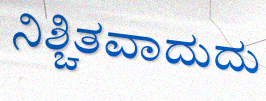
ನಿಶ್ಚಿತವಾದುದು